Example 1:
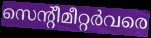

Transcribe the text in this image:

സെന്റീമീറ്റർവരെ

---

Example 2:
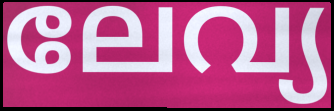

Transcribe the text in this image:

ലേവ്യ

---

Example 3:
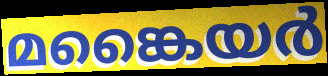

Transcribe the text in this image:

മങ്കൈയർ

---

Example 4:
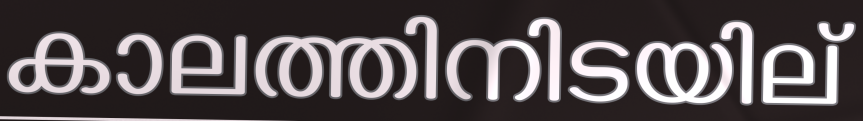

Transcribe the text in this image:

കാലത്തിനിടയില്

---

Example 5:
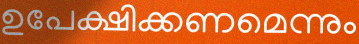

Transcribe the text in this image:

ഉപേക്ഷിക്കണമെന്നും